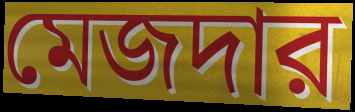
মেজদার